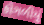
કોગળીયું